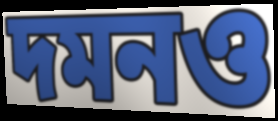
দমনও